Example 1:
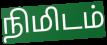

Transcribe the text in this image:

நிமிடம்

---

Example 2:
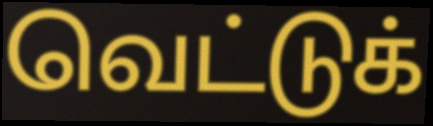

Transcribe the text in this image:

வெட்டுக்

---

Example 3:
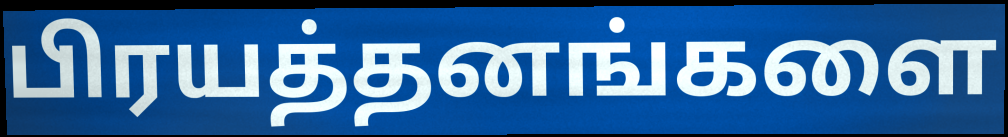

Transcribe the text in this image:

பிரயத்தனங்களை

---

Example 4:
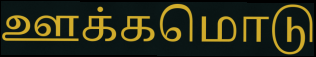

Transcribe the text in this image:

ஊக்கமொடு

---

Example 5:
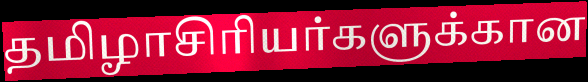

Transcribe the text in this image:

தமிழாசிரியர்களுக்கான